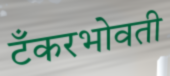
टँकरभोवती